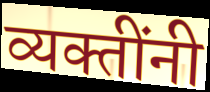
व्यक्‍तींनी